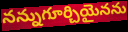
నన్నుగూర్చియైనను